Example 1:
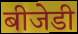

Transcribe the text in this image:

बीजेडी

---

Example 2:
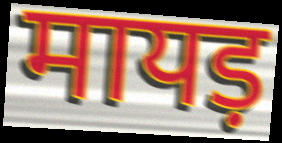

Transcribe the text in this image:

मायड़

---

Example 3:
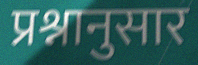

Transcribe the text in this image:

प्रश्नानुसार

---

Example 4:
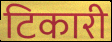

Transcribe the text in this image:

टिकारी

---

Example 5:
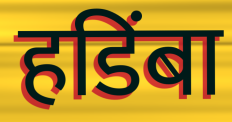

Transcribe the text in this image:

हडिंबा